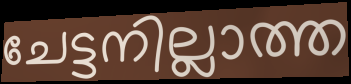
ചേട്ടനില്ലാത്ത